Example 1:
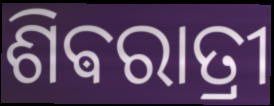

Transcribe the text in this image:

ଶିଵରାତ୍ରୀ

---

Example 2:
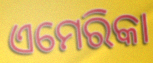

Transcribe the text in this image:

ଏମେରିକା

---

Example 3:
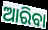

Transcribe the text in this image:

ଆରିବା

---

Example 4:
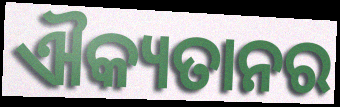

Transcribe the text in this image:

ଐକ୍ୟତାନର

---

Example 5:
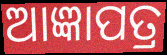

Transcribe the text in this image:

ଆଜ୍ଞାପତ୍ର